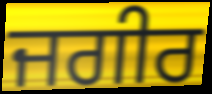
ਜਗੀਰ